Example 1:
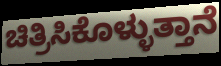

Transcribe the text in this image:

ಚಿತ್ರಿಸಿಕೊಳ್ಳುತ್ತಾನೆ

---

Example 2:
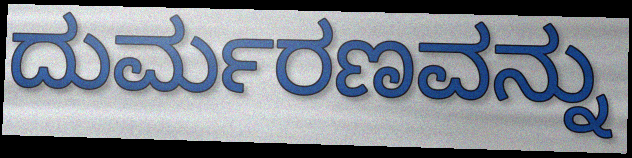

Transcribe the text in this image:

ದುರ್ಮರಣವನ್ನು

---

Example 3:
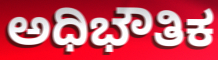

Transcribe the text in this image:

ಅಧಿಭೌತಿಕ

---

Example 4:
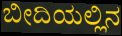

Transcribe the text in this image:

ಬೀದಿಯಲ್ಲಿನ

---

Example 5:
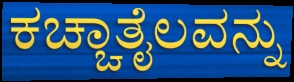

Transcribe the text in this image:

ಕಚ್ಚಾತೈಲವನ್ನು